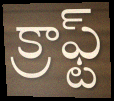
క్రాఫ్ట్